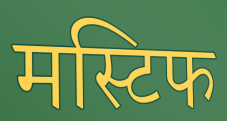
मस्टिफ